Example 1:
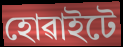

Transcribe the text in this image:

হোৱাইটে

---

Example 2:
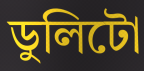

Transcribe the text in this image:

ডুলিটো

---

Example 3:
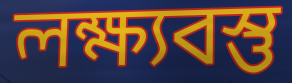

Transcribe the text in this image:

লক্ষ্যবস্তু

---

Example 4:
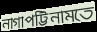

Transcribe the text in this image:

নাগাপট্টিনামতে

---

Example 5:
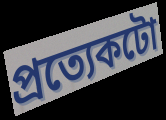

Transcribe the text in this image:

প্ৰত্যেকটো